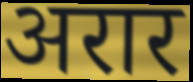
अरार